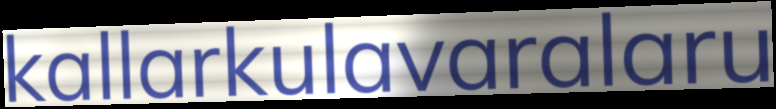
kallarkulavaralaru